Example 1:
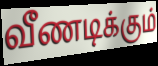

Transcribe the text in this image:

வீணடிக்கும்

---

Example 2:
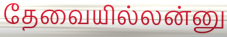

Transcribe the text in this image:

தேவையில்லன்னு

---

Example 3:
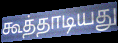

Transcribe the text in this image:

கூத்தாடியது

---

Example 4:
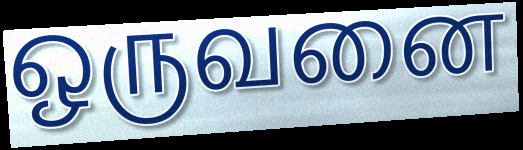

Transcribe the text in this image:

ஒருவனை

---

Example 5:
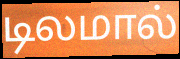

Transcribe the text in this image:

டிலமால்